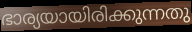
ഭാര്യയായിരിക്കുന്നതു